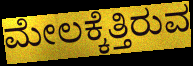
ಮೇಲಕ್ಕೆತ್ತಿರುವ